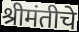
श्रीमंतीचे